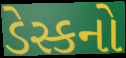
ડેસ્કનો